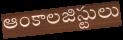
ఆంకాలజిస్టులు